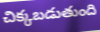
చిక్కబడుతుంది